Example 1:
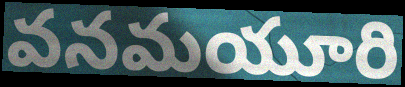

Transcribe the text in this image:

వనమయూరి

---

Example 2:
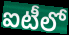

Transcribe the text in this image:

ఐటీలో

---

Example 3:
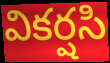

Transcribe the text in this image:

వికర్షసి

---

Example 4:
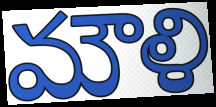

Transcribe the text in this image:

మౌళి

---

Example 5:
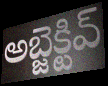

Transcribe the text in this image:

అబ్జెక్టివ్